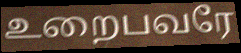
உறைபவரே